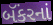
બૅંકરનાં